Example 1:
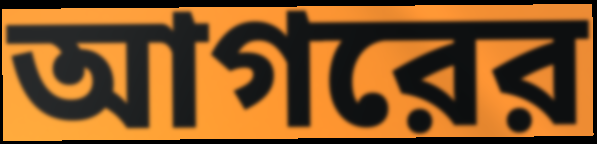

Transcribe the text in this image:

আগরের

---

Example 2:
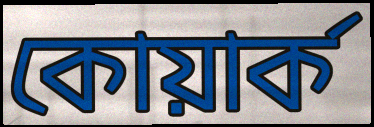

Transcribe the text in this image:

কোয়ার্ক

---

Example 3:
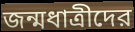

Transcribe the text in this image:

জন্মধাত্রীদের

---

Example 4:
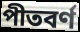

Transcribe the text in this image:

পীতবর্ণ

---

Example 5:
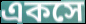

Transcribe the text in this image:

একসে